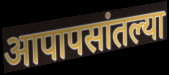
आपापसांतल्या